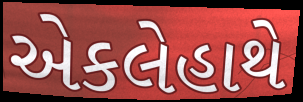
એકલેહાથે